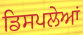
ਡਿਸਪਲੇਆਂ